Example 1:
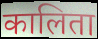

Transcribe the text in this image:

कालिता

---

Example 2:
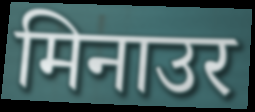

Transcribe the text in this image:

मिनाउर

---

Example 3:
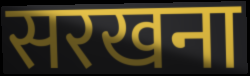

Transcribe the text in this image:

सरखना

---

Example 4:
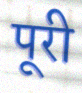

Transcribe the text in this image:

पूरी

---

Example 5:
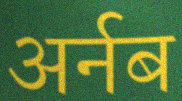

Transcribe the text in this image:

अर्नब